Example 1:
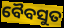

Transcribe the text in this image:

ବୈବସୁତ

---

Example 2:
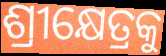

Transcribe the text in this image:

ଶ୍ରୀକ୍ଷେତ୍ରକୁ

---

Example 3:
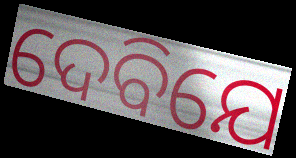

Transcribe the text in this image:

ଦେବିଯେ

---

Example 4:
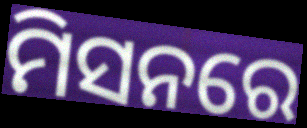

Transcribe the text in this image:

ମିସନରେ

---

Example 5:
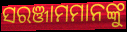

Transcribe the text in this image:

ସରଞ୍ଜାମମାନଙ୍କୁ